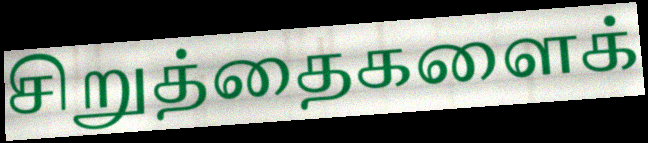
சிறுத்தைகளைக்